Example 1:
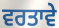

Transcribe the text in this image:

ਵਰਤਾਵੇ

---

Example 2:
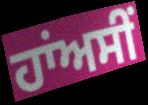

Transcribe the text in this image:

ਹਾਂਅਸੀਂ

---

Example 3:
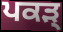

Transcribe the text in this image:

ਪਕੜ੍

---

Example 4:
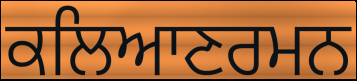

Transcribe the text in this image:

ਕਲਿਆਣਰਮਨ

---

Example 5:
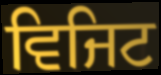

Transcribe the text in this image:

ਵਿਜਿਟ